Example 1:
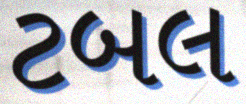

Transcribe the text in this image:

ટબલ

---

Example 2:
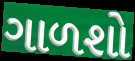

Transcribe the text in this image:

ગાળશો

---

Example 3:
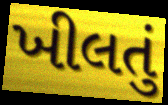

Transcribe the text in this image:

ખીલતું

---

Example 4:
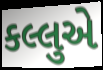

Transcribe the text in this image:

કલ્લુએ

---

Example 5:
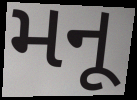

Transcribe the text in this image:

મનૂ